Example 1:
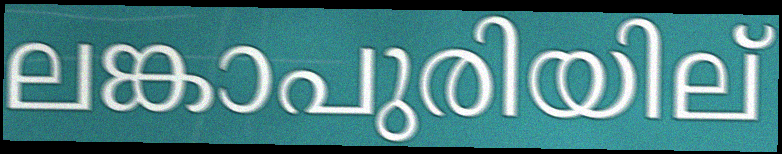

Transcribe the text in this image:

ലങ്കാപുരിയില്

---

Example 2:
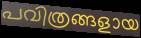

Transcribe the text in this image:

പവിത്രങ്ങളായ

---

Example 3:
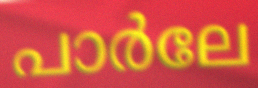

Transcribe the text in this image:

പാർലേ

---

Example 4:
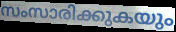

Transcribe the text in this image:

സംസാരിക്കുകയും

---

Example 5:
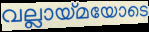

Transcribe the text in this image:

വല്ലായ്മയോടെ